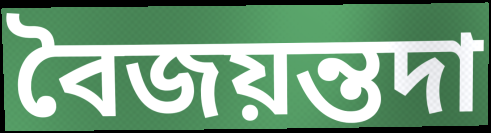
বৈজয়ন্তদা